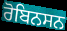
ਰੋਬਿਨਸਨ